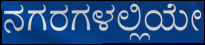
ನಗರಗಳಲ್ಲಿಯೇ